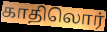
காதிலொர்